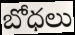
బోధలు